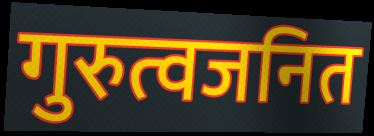
गुरुत्वजनित